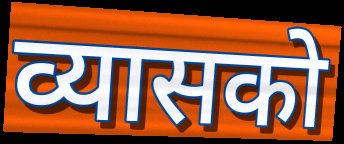
व्यासको